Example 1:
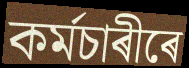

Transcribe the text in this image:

কৰ্মচাৰীৰে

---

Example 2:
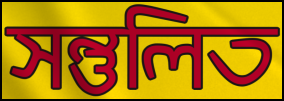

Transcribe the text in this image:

সন্তুলিত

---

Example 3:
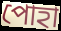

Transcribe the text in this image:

পোহা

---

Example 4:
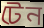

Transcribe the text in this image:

টেন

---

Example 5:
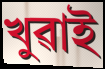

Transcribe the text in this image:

খুৱাই